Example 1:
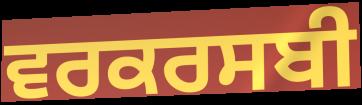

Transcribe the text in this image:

ਵਰਕਰਸਬੀ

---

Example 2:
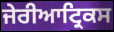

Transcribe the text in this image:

ਜੇਰੀਆਟ੍ਰਿਕਸ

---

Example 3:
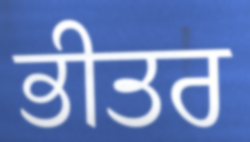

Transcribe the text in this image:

ਭੀਤਰ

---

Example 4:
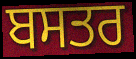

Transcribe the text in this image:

ਬਸਤਰ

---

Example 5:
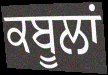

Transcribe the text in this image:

ਕਬੂਲਾਂ